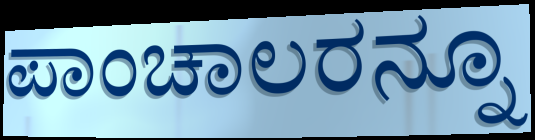
ಪಾಂಚಾಲರನ್ನೂ